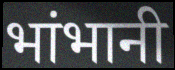
भांभानी